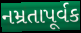
નમ્રતાપૂર્વક